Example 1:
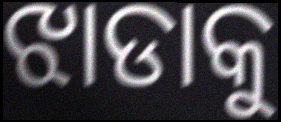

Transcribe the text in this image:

ଝାଡାକୁ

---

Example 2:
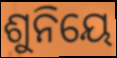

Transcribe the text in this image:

ଶୁନିୟେ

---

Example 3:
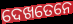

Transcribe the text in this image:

ଦେଖତେନେ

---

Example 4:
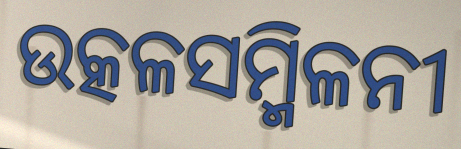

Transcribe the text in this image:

ଉତ୍କଳସମ୍ମିଳନୀ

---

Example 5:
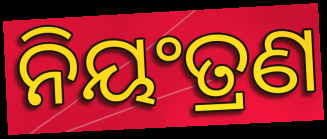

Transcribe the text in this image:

ନିୟଂତ୍ରଣ